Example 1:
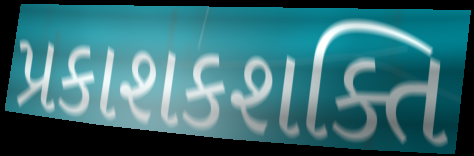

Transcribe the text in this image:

પ્રકાશકશક્તિ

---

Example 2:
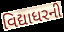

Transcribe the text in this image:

વિદ્યાધરની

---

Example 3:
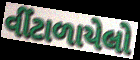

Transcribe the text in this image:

વીંટાળાયેલો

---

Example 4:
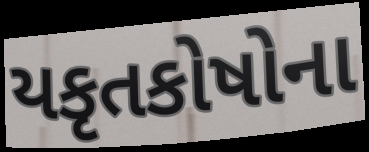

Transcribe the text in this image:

યકૃતકોષોના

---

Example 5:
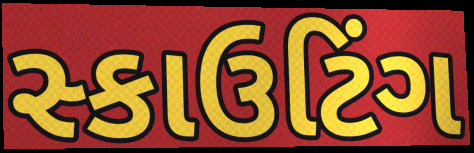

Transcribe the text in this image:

સ્કાઉટિંગ